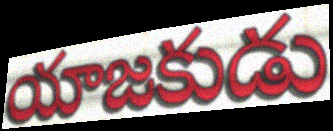
యాజకుడు